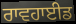
ਰਾਵਹਾਈਡ